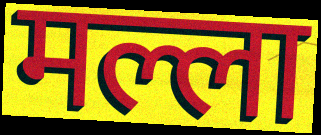
मल्‍ला